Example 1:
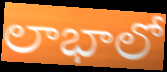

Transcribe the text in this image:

లాభాలో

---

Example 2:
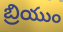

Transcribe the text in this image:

బ్రియుం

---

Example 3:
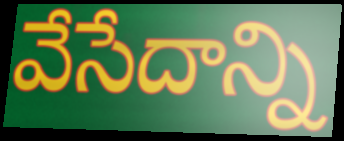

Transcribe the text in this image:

వేసేదాన్ని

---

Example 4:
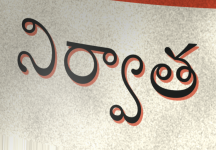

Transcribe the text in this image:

నిర్వాత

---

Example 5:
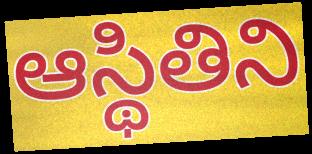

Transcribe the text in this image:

ఆస్థితిని